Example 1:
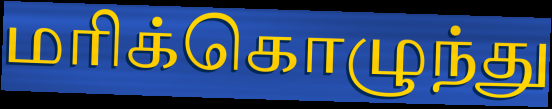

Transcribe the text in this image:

மரிக்கொழுந்து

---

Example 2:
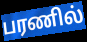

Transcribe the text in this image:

பரணில்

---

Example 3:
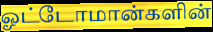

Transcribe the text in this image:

ஓட்டோமான்களின்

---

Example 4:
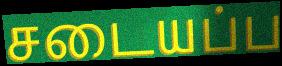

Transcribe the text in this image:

சடையப்ப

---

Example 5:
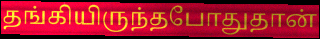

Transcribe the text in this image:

தங்கியிருந்தபோதுதான்